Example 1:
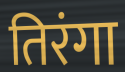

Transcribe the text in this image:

तिरंगा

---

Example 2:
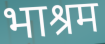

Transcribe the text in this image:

भाश्रम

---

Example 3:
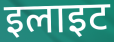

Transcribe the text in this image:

इलाइट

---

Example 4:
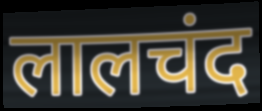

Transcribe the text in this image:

लालचंद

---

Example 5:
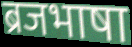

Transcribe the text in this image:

ब्रजभाषा